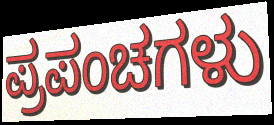
ಪ್ರಪಂಚಗಳು